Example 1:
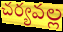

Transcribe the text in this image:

చర్యవల్ల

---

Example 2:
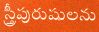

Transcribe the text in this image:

స్త్రీపురుషులను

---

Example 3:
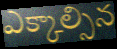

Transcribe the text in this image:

ఎక్కాల్సిన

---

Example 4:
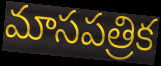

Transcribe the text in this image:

మాసపత్రిక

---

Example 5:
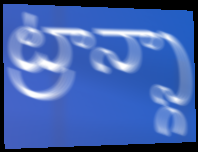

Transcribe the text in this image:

ట్రాన్స్గా